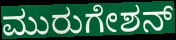
ಮುರುಗೇಶನ್